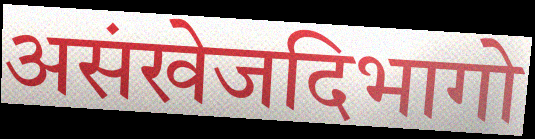
असंखेजदिभागो